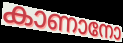
കാണാനോ